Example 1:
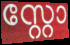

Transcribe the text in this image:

സ്റ്റോ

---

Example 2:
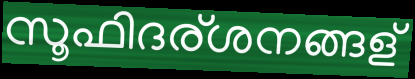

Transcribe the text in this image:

സൂഫിദര്ശനങ്ങള്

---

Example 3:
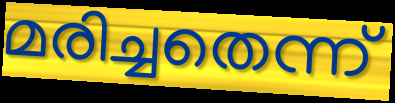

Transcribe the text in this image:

മരിച്ചതെന്ന്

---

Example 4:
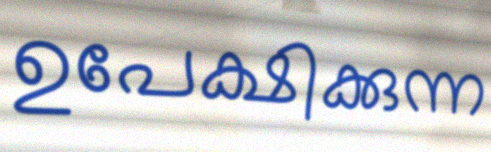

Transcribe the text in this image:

ഉപേക്ഷിക്കുന്ന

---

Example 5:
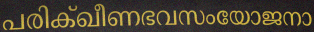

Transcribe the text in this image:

പരിക്ഖീണഭവസംയോജനാ